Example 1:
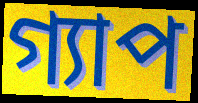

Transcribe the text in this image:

গ্যাপ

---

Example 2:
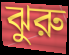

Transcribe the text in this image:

ঝুরু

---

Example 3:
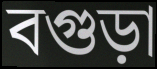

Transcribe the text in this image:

বগুড়া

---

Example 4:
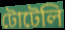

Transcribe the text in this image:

টোটেলি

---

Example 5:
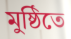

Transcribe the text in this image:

মুষ্ঠিতে